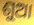
ଶୁଆ